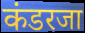
कंडरजा